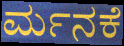
ರ್ಮನಕೆ